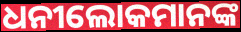
ଧନୀଲୋକମାନଙ୍କ